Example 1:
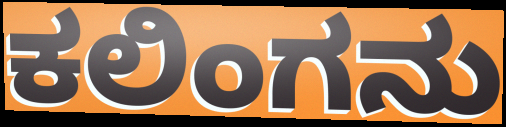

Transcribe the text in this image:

ಕಲಿಂಗನು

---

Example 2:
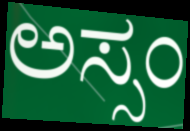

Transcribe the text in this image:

ಅಸ್ಸಂ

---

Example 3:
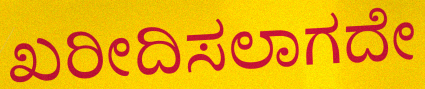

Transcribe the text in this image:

ಖರೀದಿಸಲಾಗದೇ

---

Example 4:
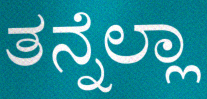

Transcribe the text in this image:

ತನ್ನೆಲ್ಲಾ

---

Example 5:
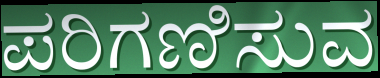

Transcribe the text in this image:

ಪರಿಗಣಿಸುವ